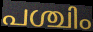
പശ്ചിം